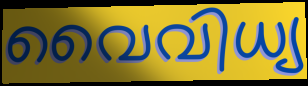
വൈവിധ്യ